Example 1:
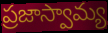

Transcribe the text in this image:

ప్రజాస్వామ్య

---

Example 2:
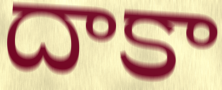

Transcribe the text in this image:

దాకా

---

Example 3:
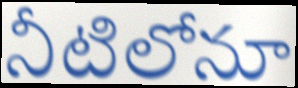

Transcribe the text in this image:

నీటిలోనూ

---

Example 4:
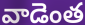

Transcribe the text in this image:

వాడెంత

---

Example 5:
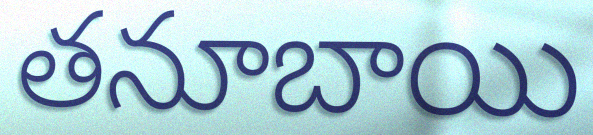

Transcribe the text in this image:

తనూబాయి